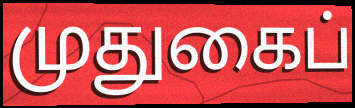
முதுகைப்